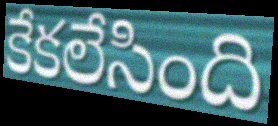
కేకలేసింది